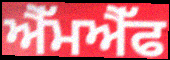
ਐੱਮਐੱਫ